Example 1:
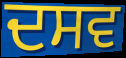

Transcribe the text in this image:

ਦਸਵ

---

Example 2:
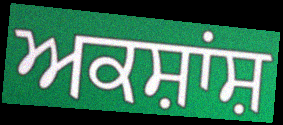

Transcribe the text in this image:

ਅਕਸ਼ਾਂਸ਼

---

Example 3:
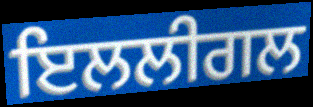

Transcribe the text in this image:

ਇਲਲੀਗਲ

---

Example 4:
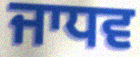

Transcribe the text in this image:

ਜਾਧਵ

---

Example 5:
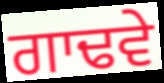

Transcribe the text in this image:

ਗਾਢਵੇ